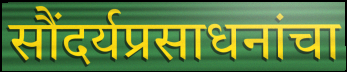
सौंदर्यप्रसाधनांचा